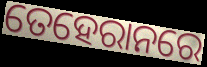
ତେହେରାନରେ